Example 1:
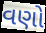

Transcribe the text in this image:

વણો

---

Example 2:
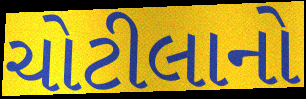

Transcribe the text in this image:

ચોટીલાનો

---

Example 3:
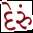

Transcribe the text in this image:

દેરું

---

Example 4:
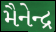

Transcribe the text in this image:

મૈનેન્દ્ર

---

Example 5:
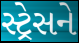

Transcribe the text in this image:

સ્ટ્રેસને